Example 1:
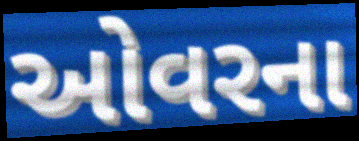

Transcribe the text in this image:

ઓવરના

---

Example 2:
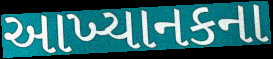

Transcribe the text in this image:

આખ્યાનકના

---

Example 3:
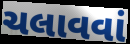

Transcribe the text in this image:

ચલાવવાં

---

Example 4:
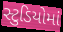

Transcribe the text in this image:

સ્ટુડિયોમાં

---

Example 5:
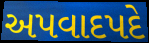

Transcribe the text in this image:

અપવાદપદે